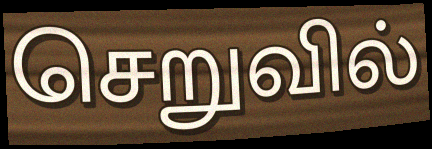
செறுவில்